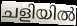
ചളിയിൽ